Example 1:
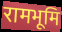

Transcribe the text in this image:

रामभूमि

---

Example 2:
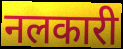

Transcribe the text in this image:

नलकारी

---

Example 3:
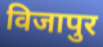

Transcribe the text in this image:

विजापुर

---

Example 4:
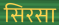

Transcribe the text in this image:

सिरसा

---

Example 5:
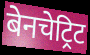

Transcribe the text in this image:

बेनचेट्रिट